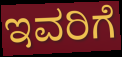
ಇವರಿಗೆ